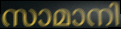
സാമാനി